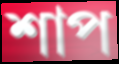
শাপ